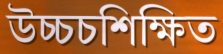
উচ্চচশিক্ষিত